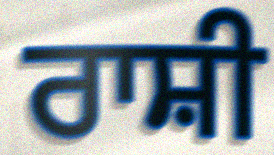
ਰਾਸ਼ੀ